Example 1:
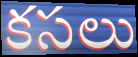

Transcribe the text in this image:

కసలు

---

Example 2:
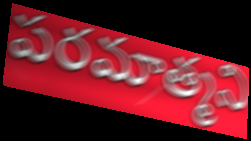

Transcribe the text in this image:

పరమాత్మని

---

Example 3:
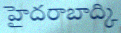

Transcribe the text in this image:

హైదరాబాద్కి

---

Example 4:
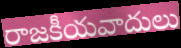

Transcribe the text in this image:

రాజకీయవాదులు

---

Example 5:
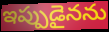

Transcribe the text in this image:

ఇప్పుడైనను